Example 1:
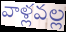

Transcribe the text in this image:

వాళ్లవల్ల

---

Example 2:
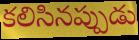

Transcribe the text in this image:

కలిసినప్పుడు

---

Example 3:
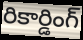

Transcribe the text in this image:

రికార్డింగ్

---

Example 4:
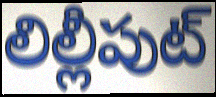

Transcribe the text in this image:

లిల్లీపుట్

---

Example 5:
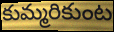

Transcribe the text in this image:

కుమ్మరికుంట